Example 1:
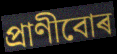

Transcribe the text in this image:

প্ৰাণীবোৰ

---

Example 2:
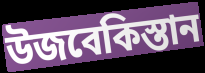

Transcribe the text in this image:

উজবেকিস্তান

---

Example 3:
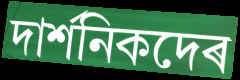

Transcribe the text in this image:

দাৰ্শনিকদেৰ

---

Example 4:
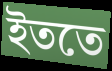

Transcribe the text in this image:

ইততে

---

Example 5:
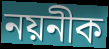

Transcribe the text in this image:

নয়নীক